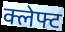
क्लेफ्ट